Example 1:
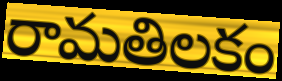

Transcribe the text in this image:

రామతిలకం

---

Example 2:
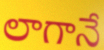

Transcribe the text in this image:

లాగానే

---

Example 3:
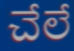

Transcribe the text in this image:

చేలే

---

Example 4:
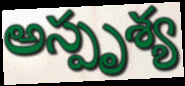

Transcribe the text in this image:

అస్పృశ్య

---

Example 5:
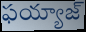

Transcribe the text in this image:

ఫయ్యాజ్